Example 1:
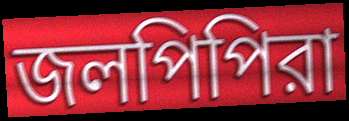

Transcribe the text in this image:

জলপিপিরা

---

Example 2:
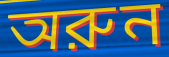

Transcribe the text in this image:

অরুন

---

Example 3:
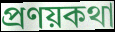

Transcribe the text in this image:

প্রণয়কথা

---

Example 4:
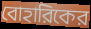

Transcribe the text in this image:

বোহারিকের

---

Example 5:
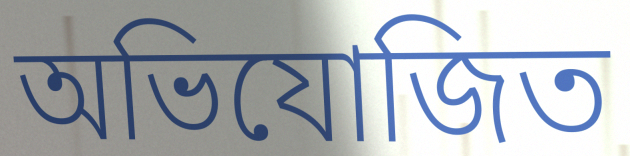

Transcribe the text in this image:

অভিযোজিত